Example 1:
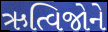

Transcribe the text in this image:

ઋત્વિજોને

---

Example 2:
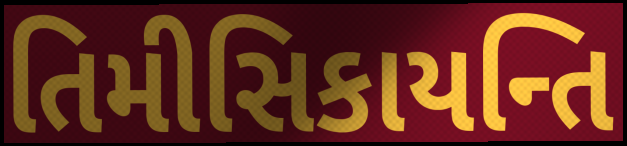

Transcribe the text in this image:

તિમીસિકાયન્તિ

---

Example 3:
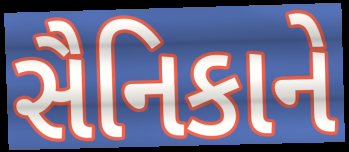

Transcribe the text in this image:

સૈનિકાને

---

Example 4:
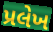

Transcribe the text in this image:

પ્રલેખ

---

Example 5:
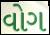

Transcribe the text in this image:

વોગ